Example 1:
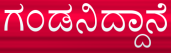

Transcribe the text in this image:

ಗಂಡನಿದ್ದಾನೆ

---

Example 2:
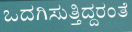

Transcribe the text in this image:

ಒದಗಿಸುತ್ತಿದ್ದರಂತೆ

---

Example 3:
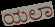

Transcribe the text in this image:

ಯಲಾ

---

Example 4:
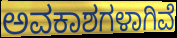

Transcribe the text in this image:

ಅವಕಾಶಗಳಾಗಿವೆ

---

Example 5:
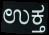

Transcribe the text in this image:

ಉಕ್ತ